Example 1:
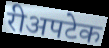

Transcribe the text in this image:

रीअपटेक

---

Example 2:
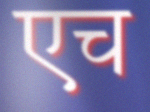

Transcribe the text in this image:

एच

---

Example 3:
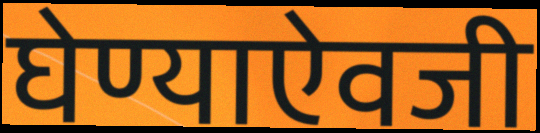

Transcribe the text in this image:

घेण्याऐवजी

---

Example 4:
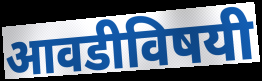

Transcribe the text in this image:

आवडीविषयी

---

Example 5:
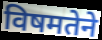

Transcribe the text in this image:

विषमतेने